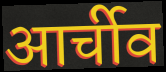
आर्चीव